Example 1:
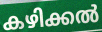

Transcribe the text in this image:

കഴിക്കൽ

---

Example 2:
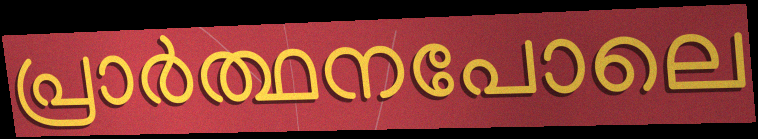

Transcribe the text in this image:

പ്രാർത്ഥനപോലെ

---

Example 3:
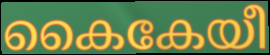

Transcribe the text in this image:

കൈകേയീ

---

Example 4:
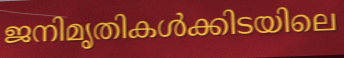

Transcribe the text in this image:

ജനിമൃതികൾക്കിടയിലെ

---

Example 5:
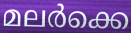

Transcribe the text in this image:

മലർക്കെ